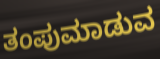
ತಂಪುಮಾಡುವ